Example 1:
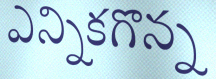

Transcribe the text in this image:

ఎన్నికగొన్న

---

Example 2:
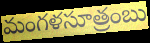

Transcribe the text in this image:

మంగళసూత్రంబు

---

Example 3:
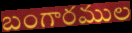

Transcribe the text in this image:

బంగారముల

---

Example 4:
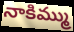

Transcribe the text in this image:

నాకిమ్ము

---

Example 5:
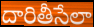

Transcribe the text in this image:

దారితీసేలా